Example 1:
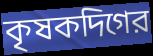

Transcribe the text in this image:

কৃষকদিগের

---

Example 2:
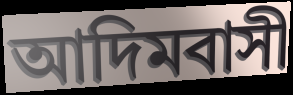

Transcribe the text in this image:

আদিমবাসী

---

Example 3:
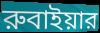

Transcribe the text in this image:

রুবাইয়ার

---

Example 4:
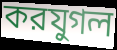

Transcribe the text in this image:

করযুগল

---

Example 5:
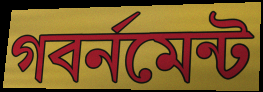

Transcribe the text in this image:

গবর্নমেন্ট